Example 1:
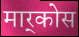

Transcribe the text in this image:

मार्कोस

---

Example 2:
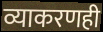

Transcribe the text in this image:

व्याकरणही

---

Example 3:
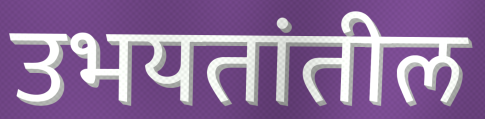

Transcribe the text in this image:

उभयतांतील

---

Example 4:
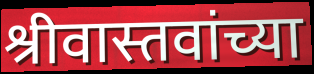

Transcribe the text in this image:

श्रीवास्तवांच्या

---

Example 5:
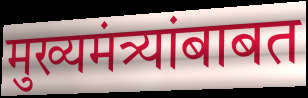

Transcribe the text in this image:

मुख्यमंत्र्यांबाबत